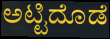
ಅಟ್ಟಿದೊಡೆ